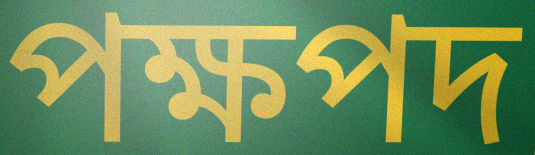
পক্ষপদ